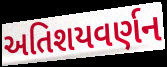
અતિશયવર્ણન